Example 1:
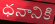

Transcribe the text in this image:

ధనానికి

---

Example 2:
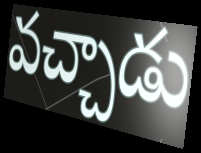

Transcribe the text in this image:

వచ్చాడు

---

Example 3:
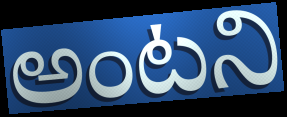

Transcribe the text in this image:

అంటని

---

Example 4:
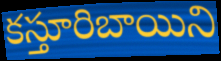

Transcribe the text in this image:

కస్తూరిబాయిని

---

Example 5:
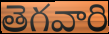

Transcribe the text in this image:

తెగవారి